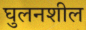
घुलनशील